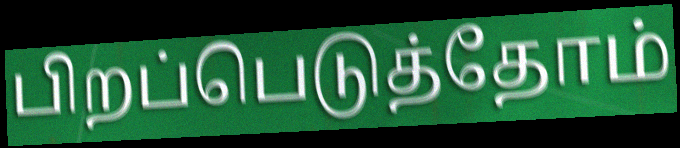
பிறப்பெடுத்தோம்